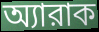
অ্যারাক